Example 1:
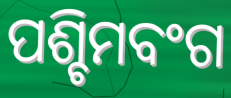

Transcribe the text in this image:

ପଶ୍ଚିମବଂଗ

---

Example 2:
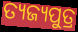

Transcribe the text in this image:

ତ୍ୟଜ୍ୟପୁତ୍ର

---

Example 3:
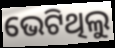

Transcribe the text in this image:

ଭେଟିଥିଲୁ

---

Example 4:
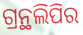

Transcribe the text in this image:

ଗ୍ରନ୍ଥଲିପିର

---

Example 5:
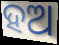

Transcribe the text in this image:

ହଅ